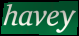
havey